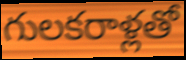
గులకరాళ్లతో